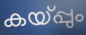
കയ്പ്പും